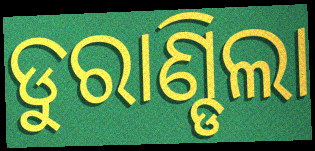
ଡୁରାଣ୍ଡିଲା